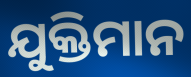
ଯୁକ୍ତିମାନ